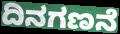
ದಿನಗಣನೆ